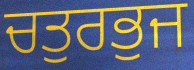
ਚਤੁਰਭੁਜ